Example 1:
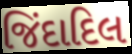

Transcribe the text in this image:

જિંદાદિલ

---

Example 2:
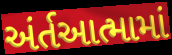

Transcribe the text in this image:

અંર્તઆત્મામાં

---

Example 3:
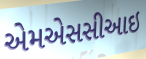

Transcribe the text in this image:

એમએસસીઆઇ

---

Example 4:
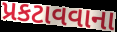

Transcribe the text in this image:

પ્રકટાવવાના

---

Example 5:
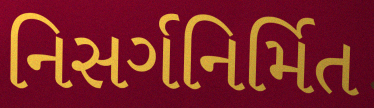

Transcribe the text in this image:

નિસર્ગનિર્મિત